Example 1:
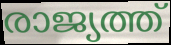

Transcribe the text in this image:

രാജ്യത്ത്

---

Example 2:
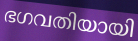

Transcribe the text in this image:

ഭഗവതിയായി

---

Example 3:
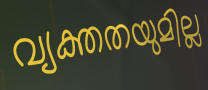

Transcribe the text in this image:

വ്യക്തതയുമില്ല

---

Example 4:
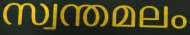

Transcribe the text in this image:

സ്വന്തമലം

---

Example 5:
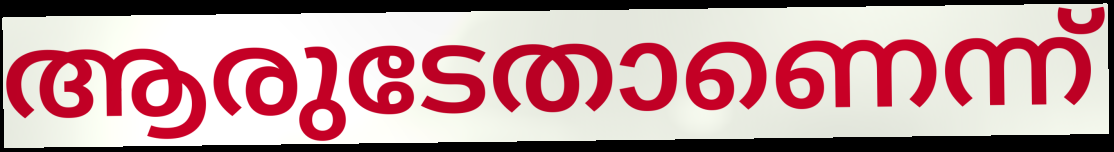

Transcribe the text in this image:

ആരുടേതാണെന്ന്